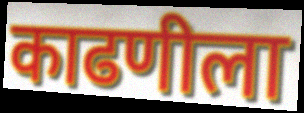
काढणीला